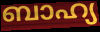
ബാഹ്യ